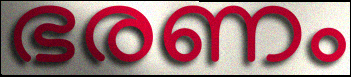
ഭരണം